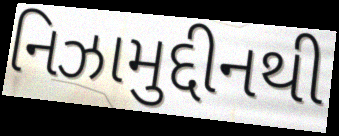
નિઝામુદ્દીનથી